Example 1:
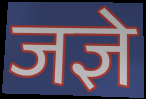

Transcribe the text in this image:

जज्ञे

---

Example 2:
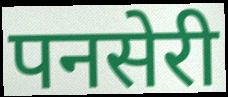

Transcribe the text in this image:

पनसेरी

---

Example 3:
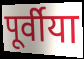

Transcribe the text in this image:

पूर्वीया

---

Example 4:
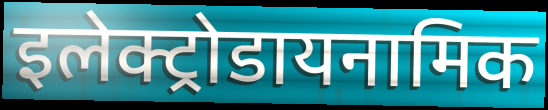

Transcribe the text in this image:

इलेक्ट्रोडायनामिक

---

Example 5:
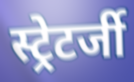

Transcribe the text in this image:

स्ट्रेटर्जी